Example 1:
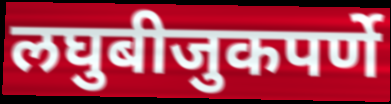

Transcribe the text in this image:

लघुबीजुकपर्णे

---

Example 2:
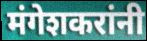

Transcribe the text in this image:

मंगेशकरांनी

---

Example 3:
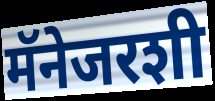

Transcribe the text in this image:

मॅनेजरशी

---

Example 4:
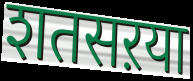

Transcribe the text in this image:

शतसऱया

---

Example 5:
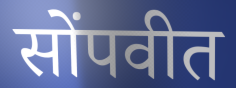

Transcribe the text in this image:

सोंपवीत